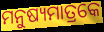
ମନୁଷ୍ୟମାତ୍ରକେ